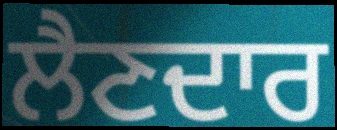
ਲੈਣਦਾਰ